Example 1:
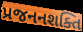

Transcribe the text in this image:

પ્રજનનશક્તિ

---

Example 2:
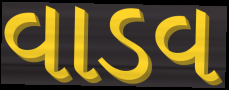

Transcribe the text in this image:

વાડવ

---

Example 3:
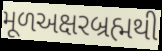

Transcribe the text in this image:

મૂળઅક્ષરબ્રહ્મથી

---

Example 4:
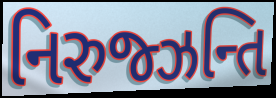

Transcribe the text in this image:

નિરુજ્ઝન્તિ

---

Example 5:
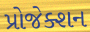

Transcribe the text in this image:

પ્રોજેક્શન